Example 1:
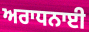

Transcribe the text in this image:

ਅਰਾਧਨਾਈ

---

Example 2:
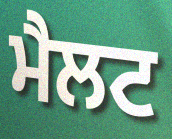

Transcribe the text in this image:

ਮੈਲਟ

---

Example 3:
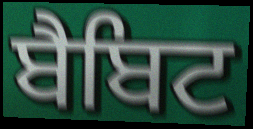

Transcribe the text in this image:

ਬੈਬਿਟ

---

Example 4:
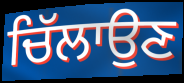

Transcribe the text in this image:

ਚਿੱਲਾਉਣ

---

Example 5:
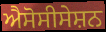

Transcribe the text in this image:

ਐਸੋਸੀਸੇਸ਼ਨ